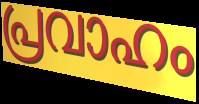
പ്രവാഹം